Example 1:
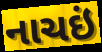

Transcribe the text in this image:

નાચઇં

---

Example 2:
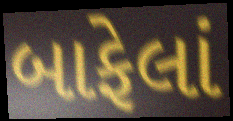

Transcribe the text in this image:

બાફેલાં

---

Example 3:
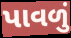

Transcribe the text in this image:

પાવળું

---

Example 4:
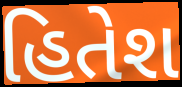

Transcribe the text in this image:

હિતેશ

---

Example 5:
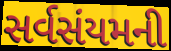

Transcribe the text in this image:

સર્વસંયમની